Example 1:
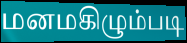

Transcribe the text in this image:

மனமகிழும்படி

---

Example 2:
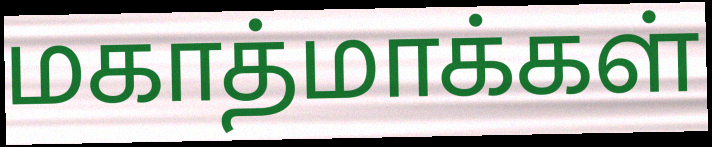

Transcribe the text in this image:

மகாத்மாக்கள்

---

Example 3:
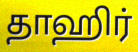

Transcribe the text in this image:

தாஹிர்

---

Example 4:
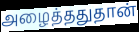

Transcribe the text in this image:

அழைத்ததுதான்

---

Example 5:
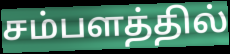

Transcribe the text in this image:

சம்பளத்தில்